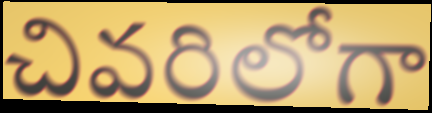
చివరిలోగా